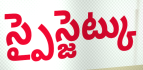
స్పైస్జెట్కు